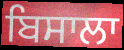
ਬਿਸਾਲਾ